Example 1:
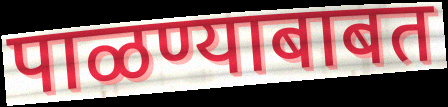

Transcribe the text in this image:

पाळण्याबाबत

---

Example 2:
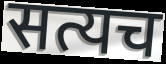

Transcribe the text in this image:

सत्यच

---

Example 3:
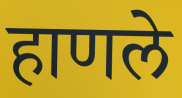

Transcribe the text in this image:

हाणले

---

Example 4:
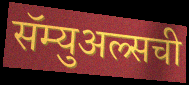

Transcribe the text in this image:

सॅम्युअल्सची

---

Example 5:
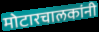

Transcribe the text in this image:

मोटारचालकांनी